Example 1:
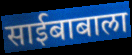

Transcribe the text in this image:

साईबाबाला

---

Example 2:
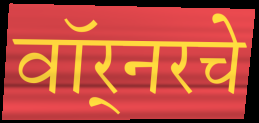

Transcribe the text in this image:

वॉर्नरचे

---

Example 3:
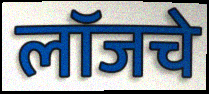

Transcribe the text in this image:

लॉजचे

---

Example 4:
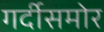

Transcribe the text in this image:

गर्दीसमोर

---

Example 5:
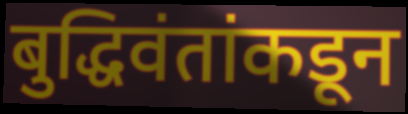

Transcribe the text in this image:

बुद्धिवंतांकडून